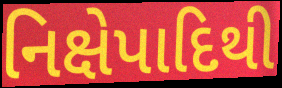
નિક્ષેપાદિથી